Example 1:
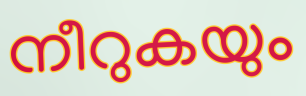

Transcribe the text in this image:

നീറുകയും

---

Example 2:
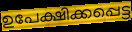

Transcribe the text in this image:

ഉപേക്ഷിക്കപ്പെട്ട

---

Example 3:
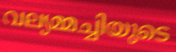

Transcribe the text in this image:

വല്യമ്മച്ചിയുടെ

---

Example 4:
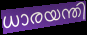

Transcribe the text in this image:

ധാരയന്തി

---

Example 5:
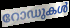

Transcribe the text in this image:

റോഡുകൾ